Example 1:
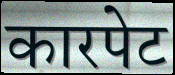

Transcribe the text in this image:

कारपेट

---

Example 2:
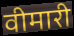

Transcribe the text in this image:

वीमारी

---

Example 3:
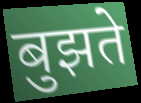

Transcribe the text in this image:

बुझते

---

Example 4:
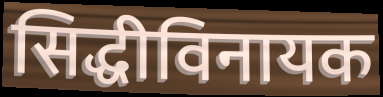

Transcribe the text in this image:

सिद्धीविनायक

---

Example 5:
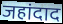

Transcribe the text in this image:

जहांदाद